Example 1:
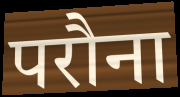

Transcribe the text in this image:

परौना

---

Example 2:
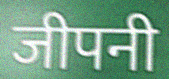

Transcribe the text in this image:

जीपनी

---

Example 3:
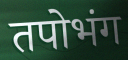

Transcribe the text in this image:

तपोभंग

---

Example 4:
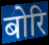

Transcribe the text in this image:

बोरि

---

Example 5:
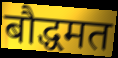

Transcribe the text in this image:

बौद्धमत